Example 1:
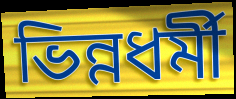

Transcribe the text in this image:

ভিন্নধৰ্মী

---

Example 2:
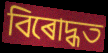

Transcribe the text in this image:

বিৰোদ্ধত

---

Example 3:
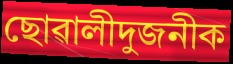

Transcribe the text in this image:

ছোৱালীদুজনীক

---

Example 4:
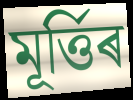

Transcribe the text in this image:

মূৰ্ত্তিৰ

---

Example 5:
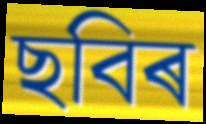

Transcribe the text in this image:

ছবিৰ